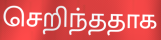
செறிந்ததாக